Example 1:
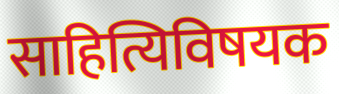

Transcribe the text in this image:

साहित्यिविषयक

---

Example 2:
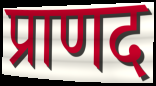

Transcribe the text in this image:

प्राणद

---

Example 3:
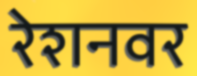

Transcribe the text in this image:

रेशनवर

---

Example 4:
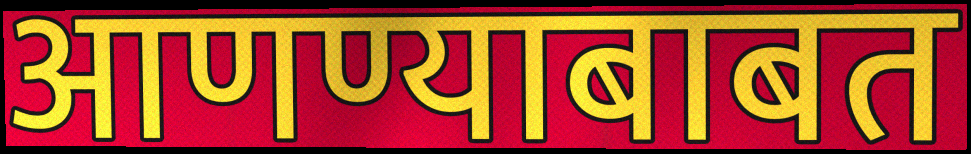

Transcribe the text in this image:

आणण्याबाबत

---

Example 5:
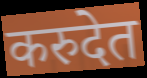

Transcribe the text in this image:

करुदेत